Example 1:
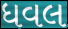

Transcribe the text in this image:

ધવલ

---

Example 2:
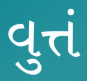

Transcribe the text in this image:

વુત્તં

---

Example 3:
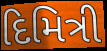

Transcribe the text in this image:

દિમિત્રી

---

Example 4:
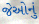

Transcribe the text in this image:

જેઓનું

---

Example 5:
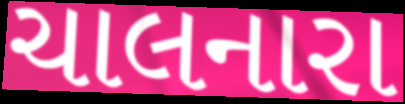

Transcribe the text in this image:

ચાલનારા